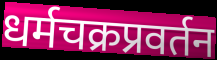
धर्मचक्रप्रवर्तन